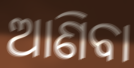
ଆଣିବା